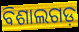
ବିଶାଲଗଡ଼